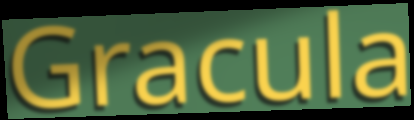
Gracula